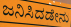
ಜನಿಸಿದಡೇನು